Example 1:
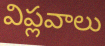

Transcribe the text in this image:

విప్లవాలు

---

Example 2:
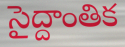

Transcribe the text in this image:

సైద్దాంతిక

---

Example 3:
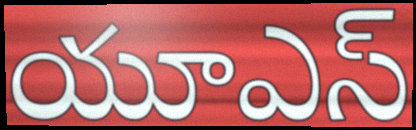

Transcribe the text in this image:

యూఎస్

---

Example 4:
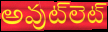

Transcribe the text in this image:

అవుట్‌లెట్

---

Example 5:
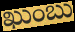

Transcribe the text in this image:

ఖుంబు